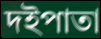
দইপাতা